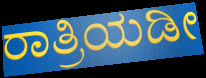
ರಾತ್ರಿಯಡೀ